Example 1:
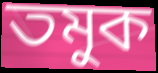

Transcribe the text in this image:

তমুক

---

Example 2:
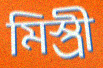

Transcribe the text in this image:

মিস্ত্ৰী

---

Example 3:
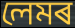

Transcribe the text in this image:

লেমৰ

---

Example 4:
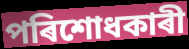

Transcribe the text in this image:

পৰিশোধকাৰী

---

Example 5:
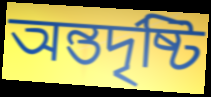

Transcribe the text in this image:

অন্তৰ্দৃষ্টি